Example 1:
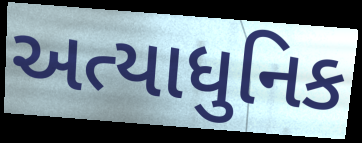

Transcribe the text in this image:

અત્યાધુનિક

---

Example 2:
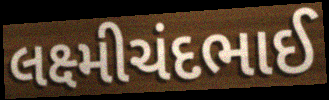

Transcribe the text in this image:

લક્ષ્મીચંદભાઈ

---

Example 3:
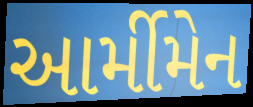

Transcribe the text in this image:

આર્મીમેન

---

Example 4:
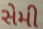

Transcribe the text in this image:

સેમી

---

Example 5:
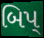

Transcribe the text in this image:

બિપ્